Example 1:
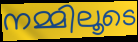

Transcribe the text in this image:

നമ്മിലൂടെ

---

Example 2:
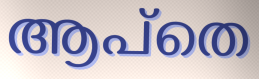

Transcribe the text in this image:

ആപ്‌തെ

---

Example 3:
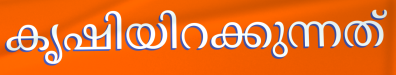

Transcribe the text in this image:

കൃഷിയിറക്കുന്നത്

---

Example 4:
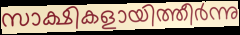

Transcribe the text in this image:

സാക്ഷികളായിത്തീർന്നു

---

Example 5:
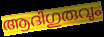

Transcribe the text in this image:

ആദിഗുരുവും